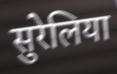
सुरेलिया